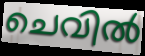
ചെവിൽ